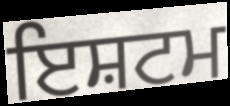
ਇਸ਼ਟਮ